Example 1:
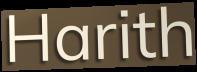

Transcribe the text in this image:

Harith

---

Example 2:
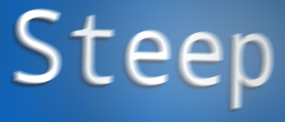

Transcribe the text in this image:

Steep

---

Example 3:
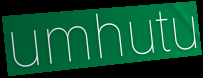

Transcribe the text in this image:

umhutu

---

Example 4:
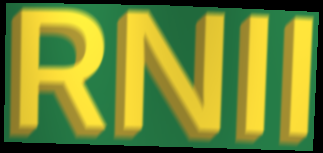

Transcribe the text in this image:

RNII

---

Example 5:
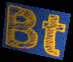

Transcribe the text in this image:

Bt